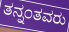
ತನ್ನಂತವರು